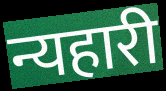
न्यहारी